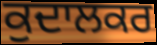
ਕੁਦਾਲਕਰ